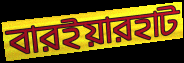
বারইয়ারহাট